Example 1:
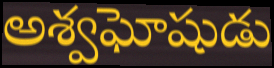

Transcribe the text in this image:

అశ్వఘోషుడు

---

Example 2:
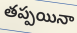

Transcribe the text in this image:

తప్పయినా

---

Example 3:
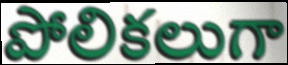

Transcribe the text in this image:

పోలికలుగా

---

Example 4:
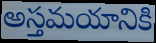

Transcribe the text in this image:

అస్తమయానికి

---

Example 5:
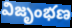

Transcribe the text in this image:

విజృంభణ